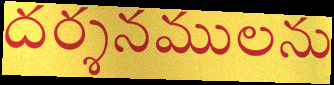
దర్శనములను